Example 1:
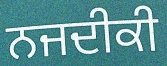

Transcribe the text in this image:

ਨਜਦੀਕੀ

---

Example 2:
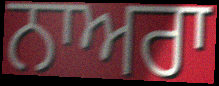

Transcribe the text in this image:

ਨਾਅਰਾ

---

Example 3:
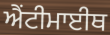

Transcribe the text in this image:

ਐਂਟੀਮਾਈਥ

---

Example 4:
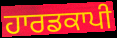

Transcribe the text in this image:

ਹਾਰਡਕਾਪੀ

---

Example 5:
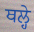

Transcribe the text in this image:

ਥਲ੍ਹੇ